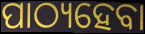
ପାଠ୍ୟହେବା